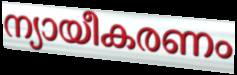
ന്യായീകരണം